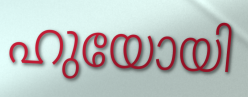
ഹുയോയി